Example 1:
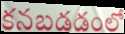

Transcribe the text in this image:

కనబడడంలో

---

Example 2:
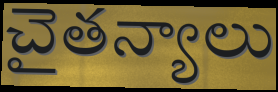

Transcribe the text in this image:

చైతన్యాలు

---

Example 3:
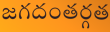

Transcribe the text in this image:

జగదంతర్గత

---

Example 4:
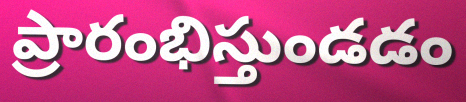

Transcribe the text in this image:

ప్రారంభిస్తుండడం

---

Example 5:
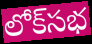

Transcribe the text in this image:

లోక్‌సభ